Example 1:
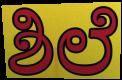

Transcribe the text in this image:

ಶಿಲೆ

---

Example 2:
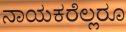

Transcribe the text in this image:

ನಾಯಕರೆಲ್ಲರೂ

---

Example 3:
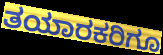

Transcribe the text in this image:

ತಯಾರಕರಿಗೂ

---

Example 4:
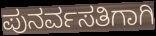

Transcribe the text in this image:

ಪುನರ್ವಸತಿಗಾಗಿ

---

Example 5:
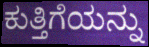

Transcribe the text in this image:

ಕುತ್ತಿಗೆಯನ್ನು